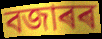
বজাৰৰ